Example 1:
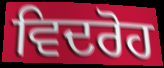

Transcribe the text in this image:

ਵਿਦਰੋਹ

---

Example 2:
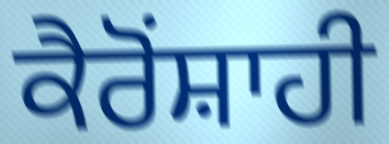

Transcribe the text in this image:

ਕੈਰੋਂਸ਼ਾਹੀ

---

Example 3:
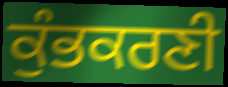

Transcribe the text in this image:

ਕੁੰਭਕਰਣੀ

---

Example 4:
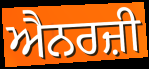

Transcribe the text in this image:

ਐਨਰਜ਼ੀ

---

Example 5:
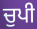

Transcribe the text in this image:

ਚੁਪੀ